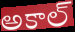
అకాల్